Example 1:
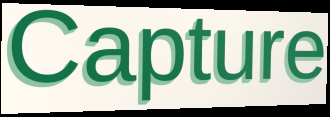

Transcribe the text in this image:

Capture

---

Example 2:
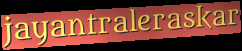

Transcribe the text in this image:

jayantraleraskar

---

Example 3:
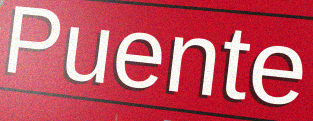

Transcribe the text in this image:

Puente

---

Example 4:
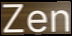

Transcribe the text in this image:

Zen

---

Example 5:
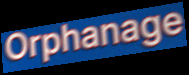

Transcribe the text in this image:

Orphanage